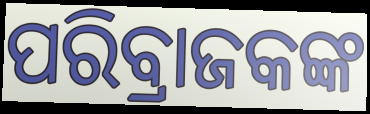
ପରିବ୍ରାଜକଙ୍କ